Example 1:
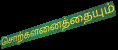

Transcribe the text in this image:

சொற்களனைத்தையும்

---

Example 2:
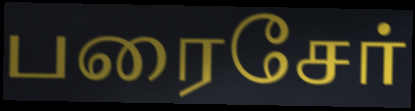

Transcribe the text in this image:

பரைசேர்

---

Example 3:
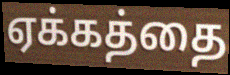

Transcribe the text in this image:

ஏக்கத்தை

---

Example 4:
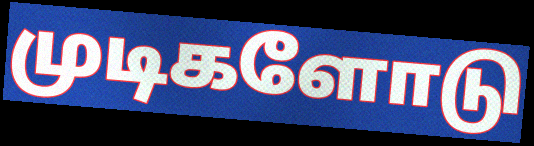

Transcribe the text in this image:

முடிகளோடு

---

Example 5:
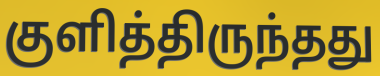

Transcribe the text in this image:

குளித்திருந்தது